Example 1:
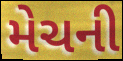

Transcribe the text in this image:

મેચની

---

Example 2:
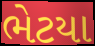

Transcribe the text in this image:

ભેટયા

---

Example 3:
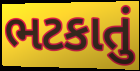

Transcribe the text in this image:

ભટકાતું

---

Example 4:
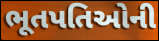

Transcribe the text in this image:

ભૂતપતિઓની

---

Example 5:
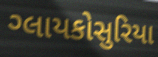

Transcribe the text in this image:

ગ્લાયકોસુરિયા